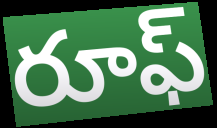
రూఫ్